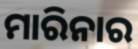
ମାରିନାର